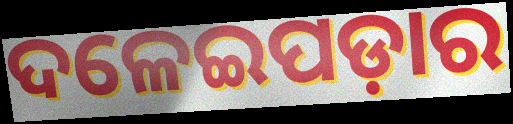
ଦଳେଇପଡ଼ାର